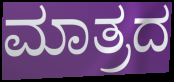
ಮಾತ್ರದ